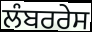
ਲੰਬਰਰੇਸ